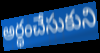
అర్ధంచేసుకుని